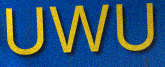
UWU